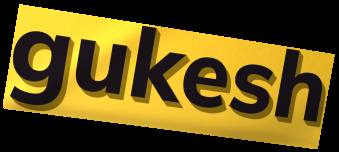
gukesh